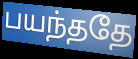
பயந்ததே